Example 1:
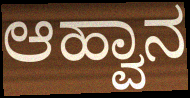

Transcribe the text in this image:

ಆಹ್ವಾನ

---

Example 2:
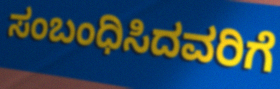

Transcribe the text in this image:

ಸಂಬಂಧಿಸಿದವರಿಗೆ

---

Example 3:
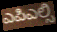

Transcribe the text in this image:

ಎಪಿಎಲ್ಸಿ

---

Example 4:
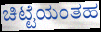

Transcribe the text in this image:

ಚಿಟ್ಟೆಯಂತಹ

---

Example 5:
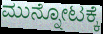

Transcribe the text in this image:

ಮುನ್ನೋಟಕ್ಕೆ